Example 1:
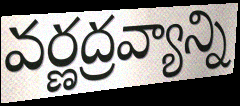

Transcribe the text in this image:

వర్ణద్రవ్యాన్ని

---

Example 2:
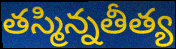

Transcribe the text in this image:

తస్మిన్నతీత్య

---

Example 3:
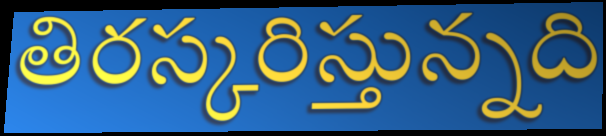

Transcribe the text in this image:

తిరస్కరిస్తున్నది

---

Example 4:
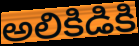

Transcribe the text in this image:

అలికిడికి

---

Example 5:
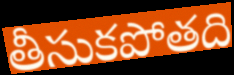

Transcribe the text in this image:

తీసుకపోతది